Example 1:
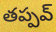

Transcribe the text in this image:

తప్పవ్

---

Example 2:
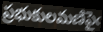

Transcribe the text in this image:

ప్రభుకులమణిపైఁ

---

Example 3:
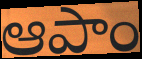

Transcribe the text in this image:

ఆపాం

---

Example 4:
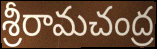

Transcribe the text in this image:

శ్రీరామచంద్ర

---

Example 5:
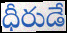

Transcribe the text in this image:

ధీరుడే